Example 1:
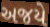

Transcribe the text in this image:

અજયે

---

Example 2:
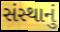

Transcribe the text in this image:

સંસ્થાનું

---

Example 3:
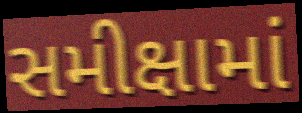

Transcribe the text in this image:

સમીક્ષામાં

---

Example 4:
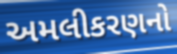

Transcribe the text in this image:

અમલીકરણનો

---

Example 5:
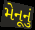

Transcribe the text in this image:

મેનૂનું